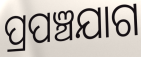
ପ୍ରପଞ୍ଚଯାଗ